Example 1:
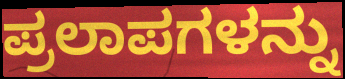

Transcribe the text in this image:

ಪ್ರಲಾಪಗಳನ್ನು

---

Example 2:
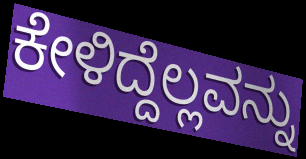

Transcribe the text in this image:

ಕೇಳಿದ್ದೆಲ್ಲವನ್ನು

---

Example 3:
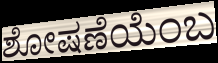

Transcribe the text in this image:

ಶೋಷಣೆಯೆಂಬ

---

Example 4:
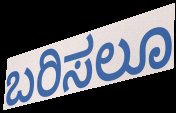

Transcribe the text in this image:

ಬರಿಸಲೂ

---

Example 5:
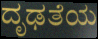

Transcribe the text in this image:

ದೃಢತೆಯ